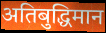
अतिबुद्धिमान